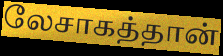
லேசாகத்தான்